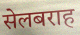
सेलबराह